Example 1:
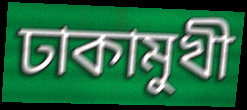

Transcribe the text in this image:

ঢাকামুখী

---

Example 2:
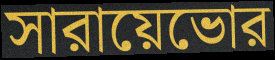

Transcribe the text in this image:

সারায়েভোর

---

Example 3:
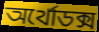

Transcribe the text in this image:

অর্থোডক্স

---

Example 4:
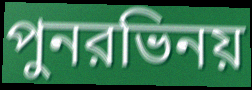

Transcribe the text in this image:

পুনরভিনয়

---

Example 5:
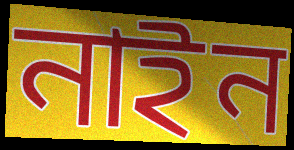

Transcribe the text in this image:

নাইন